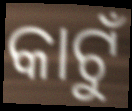
କାଟୁଁ